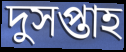
দুসপ্তাহ